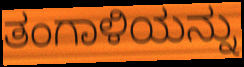
ತಂಗಾಳಿಯನ್ನು